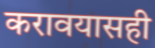
करावयासही